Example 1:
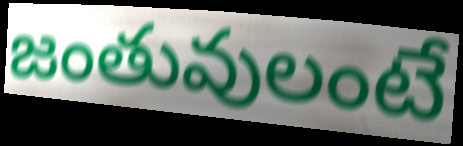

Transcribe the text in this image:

జంతువులంటే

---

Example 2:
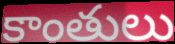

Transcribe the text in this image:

కాంతులు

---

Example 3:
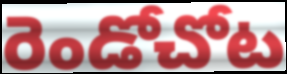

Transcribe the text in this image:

రెండోచోట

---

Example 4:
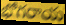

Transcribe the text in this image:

భోగరాయ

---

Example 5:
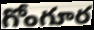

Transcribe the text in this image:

గోంగూర